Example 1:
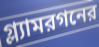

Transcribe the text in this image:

গ্ল্যামরগনের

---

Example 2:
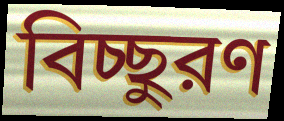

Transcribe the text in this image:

বিচ্ছুরণ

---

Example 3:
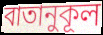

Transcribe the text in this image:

বাতানুকূল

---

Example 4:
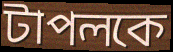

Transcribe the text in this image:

টাপলকে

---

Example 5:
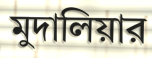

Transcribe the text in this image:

মুদালিয়ার